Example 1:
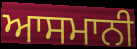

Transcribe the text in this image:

ਆਸਮਾਨੀ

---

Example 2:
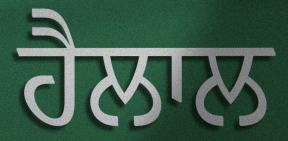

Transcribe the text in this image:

ਹੈਲਾਲ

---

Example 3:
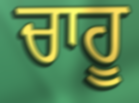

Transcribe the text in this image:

ਚਾਹੂ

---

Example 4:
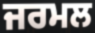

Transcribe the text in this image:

ਜਰਮਲ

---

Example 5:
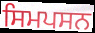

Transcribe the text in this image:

ਸਿਮਪਸਨ